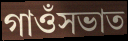
গাওঁসভাত